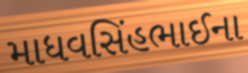
માધવસિંહભાઈના